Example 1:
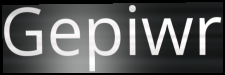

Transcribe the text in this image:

Gepiwr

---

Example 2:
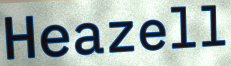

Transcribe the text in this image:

Heazell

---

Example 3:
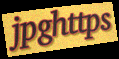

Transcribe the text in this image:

jpghttps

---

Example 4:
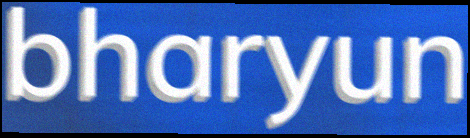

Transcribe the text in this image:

bharyun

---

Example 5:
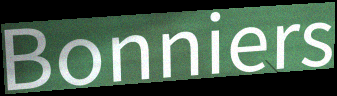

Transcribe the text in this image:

Bonniers